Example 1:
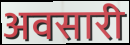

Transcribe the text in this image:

अवसारी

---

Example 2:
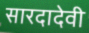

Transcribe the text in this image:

सारदादेवी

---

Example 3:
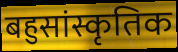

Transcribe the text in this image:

बहुसांस्कृतिक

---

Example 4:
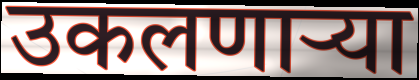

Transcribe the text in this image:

उकलणाऱ्या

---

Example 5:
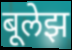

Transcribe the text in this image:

बूलेझ